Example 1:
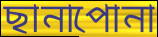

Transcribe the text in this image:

ছানাপোনা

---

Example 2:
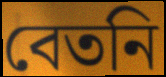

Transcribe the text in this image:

বেতনি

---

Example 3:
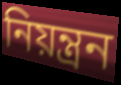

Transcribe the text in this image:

নিয়ন্ত্রন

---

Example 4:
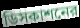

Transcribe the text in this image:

ডিসকাশনের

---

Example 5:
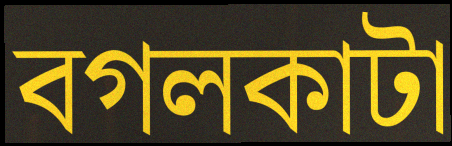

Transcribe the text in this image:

বগলকাটা